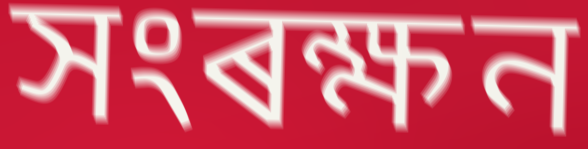
সংৰক্ষন